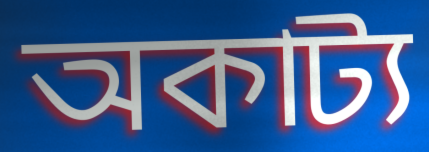
অকাট্য